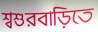
শ্বশুরবাড়িতে